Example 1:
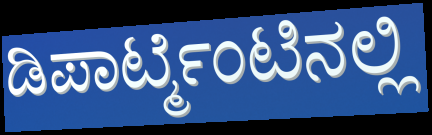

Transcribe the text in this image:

ಡಿಪಾರ್ಟ್ಮೆಂಟಿನಲ್ಲಿ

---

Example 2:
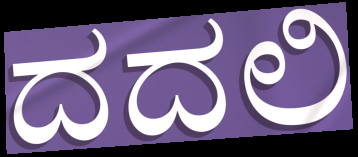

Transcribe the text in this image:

ದದಲಿ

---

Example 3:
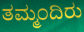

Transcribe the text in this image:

ತಮ್ಮಂದಿರು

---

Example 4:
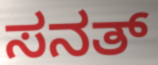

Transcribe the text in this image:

ಸನತ್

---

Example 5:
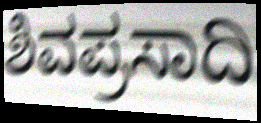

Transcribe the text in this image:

ಶಿವಪ್ರಸಾದಿ